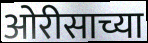
ओरीसाच्या